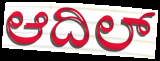
ಆದಿಲ್